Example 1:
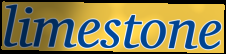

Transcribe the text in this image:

limestone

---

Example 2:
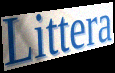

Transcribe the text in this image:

Littera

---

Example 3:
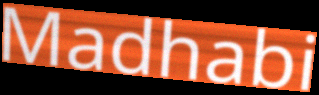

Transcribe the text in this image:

Madhabi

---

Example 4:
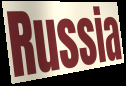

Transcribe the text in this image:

Russia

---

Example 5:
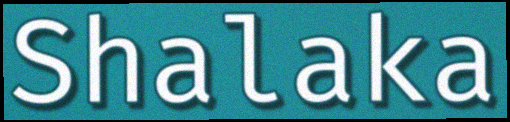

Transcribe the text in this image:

Shalaka